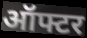
ऑफ्टर